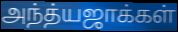
அந்த்யஜாக்கள்